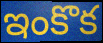
ఇంకొక